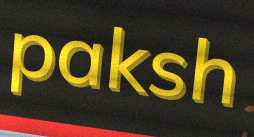
paksh